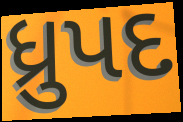
ધ્રુપદ